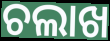
ଚଲାଖ